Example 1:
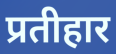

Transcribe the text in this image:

प्रतीहार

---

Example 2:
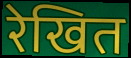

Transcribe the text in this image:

रेखित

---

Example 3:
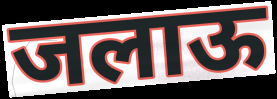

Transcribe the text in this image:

जलाऊ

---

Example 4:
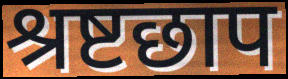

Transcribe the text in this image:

श्रष्टछाप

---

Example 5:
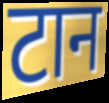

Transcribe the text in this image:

टान